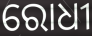
ରୋଧୀ